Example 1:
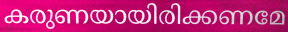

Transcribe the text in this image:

കരുണയായിരിക്കണമേ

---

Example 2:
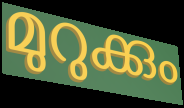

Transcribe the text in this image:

മുറുക്കും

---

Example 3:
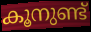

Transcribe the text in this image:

കൂനുണ്ട്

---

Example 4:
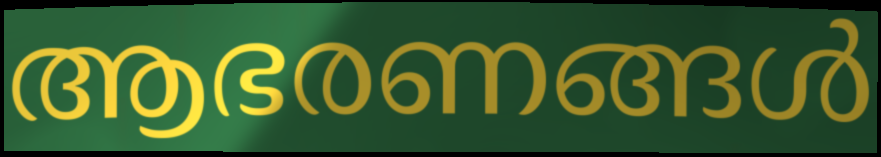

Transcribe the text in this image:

ആഭരണങ്ങൾ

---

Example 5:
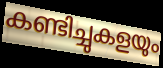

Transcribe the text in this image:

കണ്ടിച്ചുകളയും